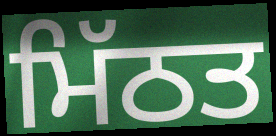
ਮਿੱਠਤ